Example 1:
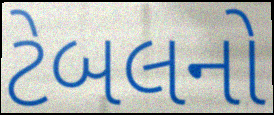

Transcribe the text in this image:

ટેબલનો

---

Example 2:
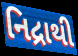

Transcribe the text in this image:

નિદ્રાથી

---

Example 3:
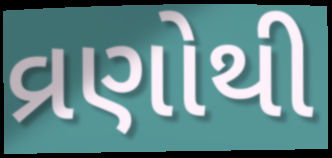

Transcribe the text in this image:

વ્રણોથી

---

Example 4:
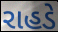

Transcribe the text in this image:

રાહડે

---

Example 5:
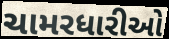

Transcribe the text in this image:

ચામરધારીઓ